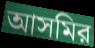
আসমির